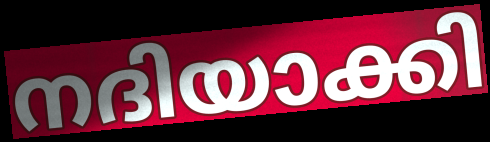
നദിയാക്കി